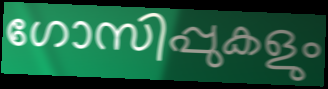
ഗോസിപ്പുകളും